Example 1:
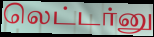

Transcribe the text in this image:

லெட்டர்னு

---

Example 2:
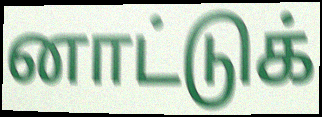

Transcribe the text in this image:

னாட்டுக்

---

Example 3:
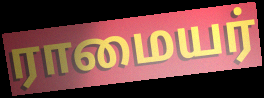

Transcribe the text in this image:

ராமையர்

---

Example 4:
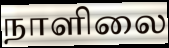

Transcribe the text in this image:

நாளிலை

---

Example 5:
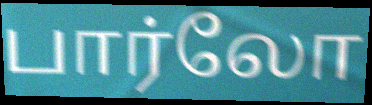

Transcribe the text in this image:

பார்லோ